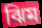
ঝিম